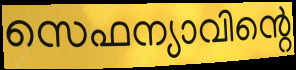
സെഫന്യാവിന്റെ